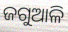
ଜଗୁଆଳି